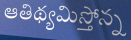
ఆతిథ్యమిస్తోన్న